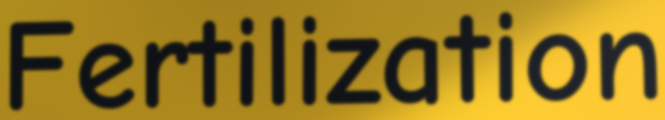
Fertilization